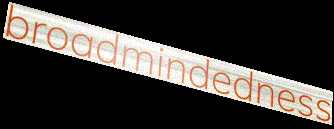
broadmindedness